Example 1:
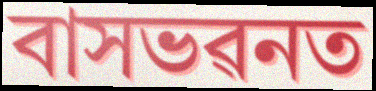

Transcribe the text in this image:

বাসভৱনত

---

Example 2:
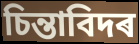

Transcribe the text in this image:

চিন্তাবিদৰ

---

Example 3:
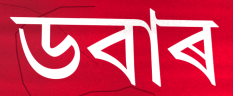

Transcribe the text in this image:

ডবাৰ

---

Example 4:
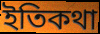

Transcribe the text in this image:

ইতিকথা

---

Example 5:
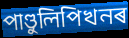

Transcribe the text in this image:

পাণ্ডুলিপিখনৰ